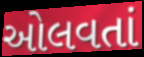
ઓલવતાં